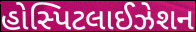
હોસ્પિટલાઈઝેશન